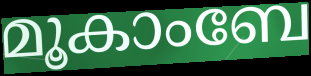
മൂകാംബേ